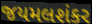
જયમલશંકર